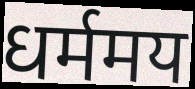
धर्ममय